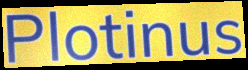
Plotinus